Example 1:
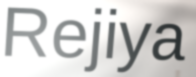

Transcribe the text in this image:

Rejiya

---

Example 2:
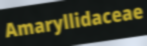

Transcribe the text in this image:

Amaryllidaceae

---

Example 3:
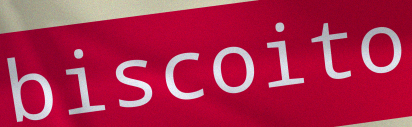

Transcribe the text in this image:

biscoito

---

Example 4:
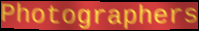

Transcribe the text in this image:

Photographers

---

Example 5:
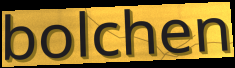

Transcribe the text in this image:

bolchen